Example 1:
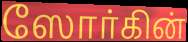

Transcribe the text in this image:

ஸோர்கின்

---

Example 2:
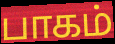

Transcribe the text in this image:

பாகம்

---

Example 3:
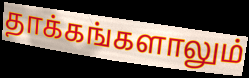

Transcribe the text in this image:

தாக்கங்களாலும்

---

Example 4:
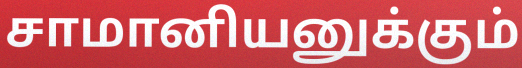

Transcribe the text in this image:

சாமானியனுக்கும்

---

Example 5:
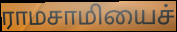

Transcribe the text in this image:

ராமசாமியைச்